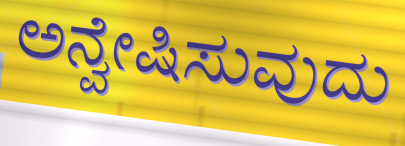
ಅನ್ವೇಷಿಸುವುದು